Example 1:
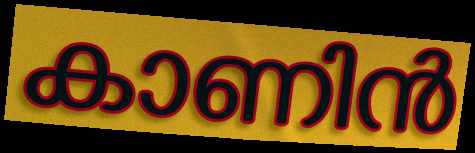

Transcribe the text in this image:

കാണിൻ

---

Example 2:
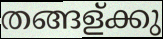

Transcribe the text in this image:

തങ്ങള്ക്കു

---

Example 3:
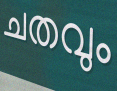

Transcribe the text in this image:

ചതവും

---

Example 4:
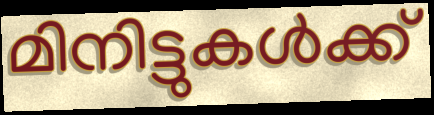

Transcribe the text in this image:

മിനിട്ടുകൾക്ക്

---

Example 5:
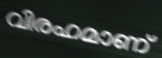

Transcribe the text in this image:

വിരഹമാണ്